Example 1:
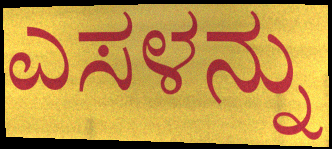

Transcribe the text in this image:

ಎಸಳನ್ನು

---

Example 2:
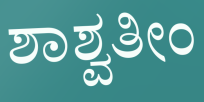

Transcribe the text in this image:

ಶಾಶ್ವತೀಂ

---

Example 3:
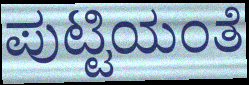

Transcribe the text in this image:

ಪುಟ್ಟಿಯಂತೆ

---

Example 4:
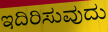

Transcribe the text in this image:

ಇದಿರಿಸುವುದು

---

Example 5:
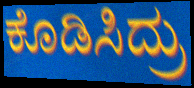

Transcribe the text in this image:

ಕೊಡಿಸಿದ್ರು